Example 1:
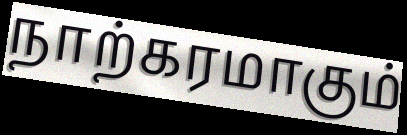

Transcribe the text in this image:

நாற்கரமாகும்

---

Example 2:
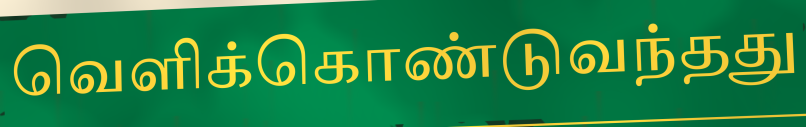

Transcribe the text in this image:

வெளிக்கொண்டுவந்தது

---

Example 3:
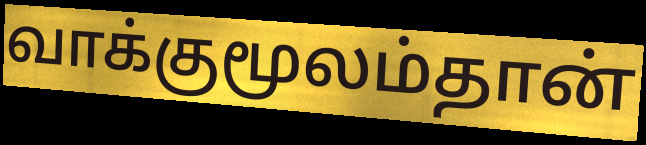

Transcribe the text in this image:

வாக்குமூலம்தான்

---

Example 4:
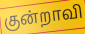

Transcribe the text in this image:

குன்றாவி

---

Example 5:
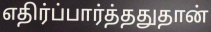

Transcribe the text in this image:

எதிர்ப்பார்த்ததுதான்